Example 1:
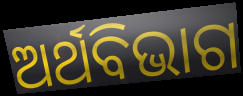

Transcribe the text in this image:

ଅର୍ଥବିଭାଗ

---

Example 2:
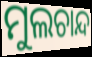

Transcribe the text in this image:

ମୁଲଚାନ୍ଦ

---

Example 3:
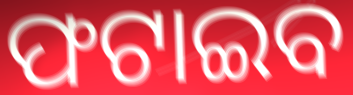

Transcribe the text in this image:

ଫଟାଇବ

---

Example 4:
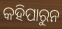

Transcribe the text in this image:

କହିପାରୁନ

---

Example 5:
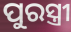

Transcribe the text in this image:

ପୁରସ୍ତ୍ରୀ